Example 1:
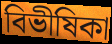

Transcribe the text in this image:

বিভীষিকা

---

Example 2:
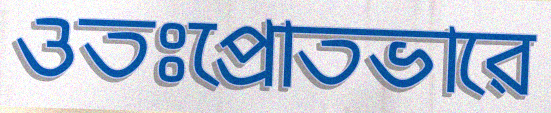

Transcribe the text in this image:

ওতঃপ্ৰোতভাৱে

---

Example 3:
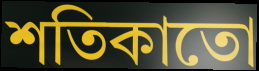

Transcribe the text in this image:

শতিকাতো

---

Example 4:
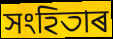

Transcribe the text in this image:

সংহিতাৰ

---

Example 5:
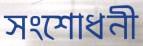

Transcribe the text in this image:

সংশোধনী